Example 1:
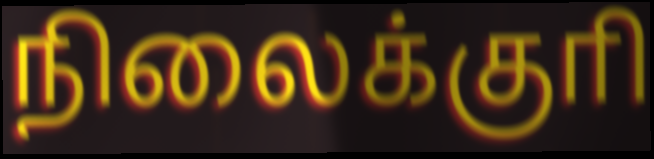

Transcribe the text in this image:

நிலைக்குரி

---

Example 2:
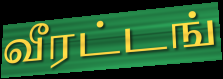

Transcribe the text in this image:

வீரட்டங்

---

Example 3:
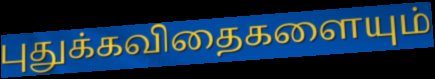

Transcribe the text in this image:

புதுக்கவிதைகளையும்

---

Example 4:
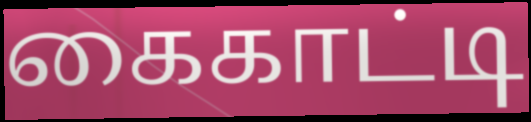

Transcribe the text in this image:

கைகாட்டி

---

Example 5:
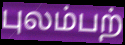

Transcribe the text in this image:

புலம்பற்